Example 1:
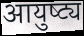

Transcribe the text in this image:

आयुष्ट्य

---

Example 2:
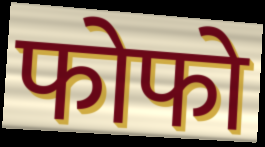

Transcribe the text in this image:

फोफो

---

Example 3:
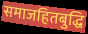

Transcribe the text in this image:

समाजहितबुद्धि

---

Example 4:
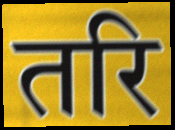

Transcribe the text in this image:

तरि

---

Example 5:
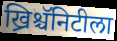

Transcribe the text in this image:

ख्रिश्चॅनिटीला